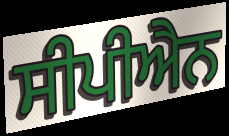
ਸੀਪੀਐਨ